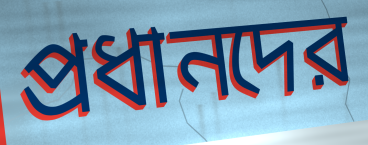
প্রধানদের